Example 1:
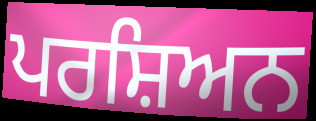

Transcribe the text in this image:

ਪਰਸ਼ਿਅਨ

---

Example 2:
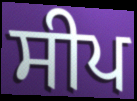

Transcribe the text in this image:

ਸੀਪ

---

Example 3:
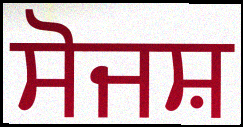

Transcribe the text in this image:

ਸੋਜਸ਼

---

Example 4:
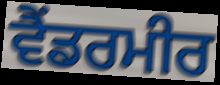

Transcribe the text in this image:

ਵੈਂਡਰਮੀਰ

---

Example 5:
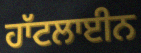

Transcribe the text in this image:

ਹਾੱਟਲਾਈਨ